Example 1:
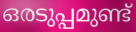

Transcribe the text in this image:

ഒരടുപ്പമുണ്ട്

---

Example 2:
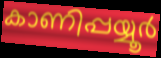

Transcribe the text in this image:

കാണിപ്പയ്യൂർ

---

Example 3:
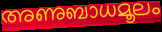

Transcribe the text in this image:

അണുബാധമൂലം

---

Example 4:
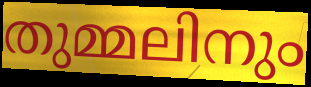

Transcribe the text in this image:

തുമ്മലിനും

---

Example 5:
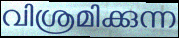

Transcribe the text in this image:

വിശ്രമിക്കുന്ന